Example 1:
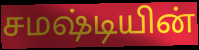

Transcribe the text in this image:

சமஷ்டியின்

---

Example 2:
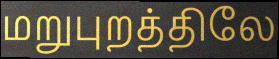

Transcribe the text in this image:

மறுபுறத்திலே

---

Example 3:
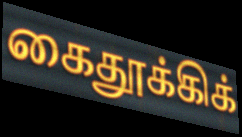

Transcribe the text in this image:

கைதூக்கிக்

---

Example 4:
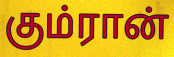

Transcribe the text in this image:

கும்ரான்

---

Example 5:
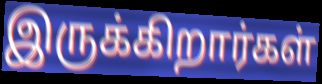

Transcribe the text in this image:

இருக்கிறார்கள்